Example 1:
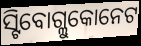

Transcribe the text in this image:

ସ୍ଟିବୋଗ୍ଲୁକୋନେଟ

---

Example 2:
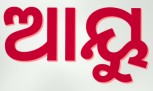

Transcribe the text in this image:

ଆୟୁ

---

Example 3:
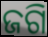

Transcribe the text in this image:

ଜଗି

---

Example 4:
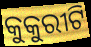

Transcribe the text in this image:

କୁକୁରୀଟି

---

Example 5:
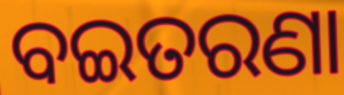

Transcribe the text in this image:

ବଇତରଣା